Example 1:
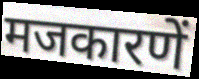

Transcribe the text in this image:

मजकारणें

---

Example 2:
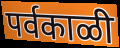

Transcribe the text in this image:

पर्वकाळी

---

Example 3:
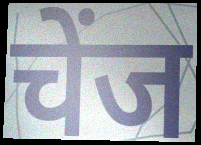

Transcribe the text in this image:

चेंज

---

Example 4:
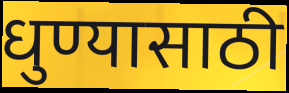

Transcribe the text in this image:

धुण्यासाठी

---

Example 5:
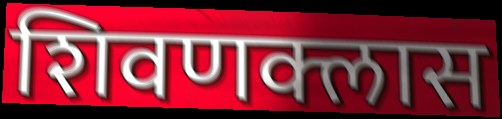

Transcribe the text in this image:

शिवणक्लास